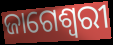
ଜାଗେଶ୍ୱରୀ